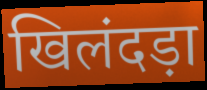
खिलंदड़ा